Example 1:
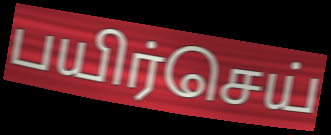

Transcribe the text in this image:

பயிர்செய்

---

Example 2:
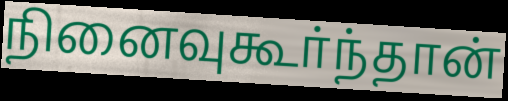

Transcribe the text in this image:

நினைவுகூர்ந்தான்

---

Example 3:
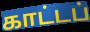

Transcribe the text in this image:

காட்டப்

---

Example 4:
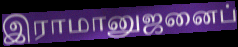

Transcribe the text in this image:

இராமானுஜனைப்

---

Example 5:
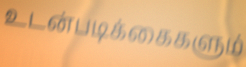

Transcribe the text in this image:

உடன்படிக்கைகளும்